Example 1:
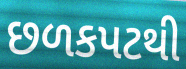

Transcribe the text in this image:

છળકપટથી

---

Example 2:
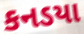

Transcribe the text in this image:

કનડયા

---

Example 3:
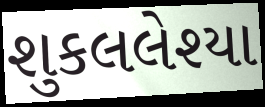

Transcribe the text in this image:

શુકલલેશ્યા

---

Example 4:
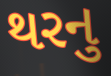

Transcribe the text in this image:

થરનુ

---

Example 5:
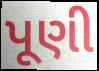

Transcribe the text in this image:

પૂણી